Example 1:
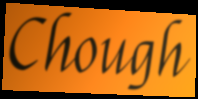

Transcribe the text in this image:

Chough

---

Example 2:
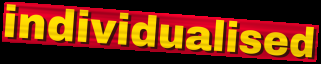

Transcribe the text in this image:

individualised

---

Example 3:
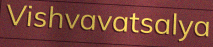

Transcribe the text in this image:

Vishvavatsalya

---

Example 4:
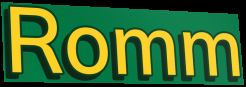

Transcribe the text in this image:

Romm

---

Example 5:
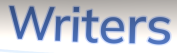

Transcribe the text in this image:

Writers